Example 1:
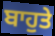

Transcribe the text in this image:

ਬਾਹੁਤੇ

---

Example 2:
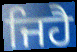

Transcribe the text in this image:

ਜਿਹੈ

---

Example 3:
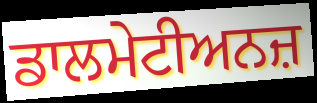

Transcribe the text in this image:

ਡਾਲਮੇਟੀਅਨਜ਼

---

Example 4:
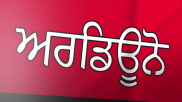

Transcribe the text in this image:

ਅਰਡਿਊਨੋ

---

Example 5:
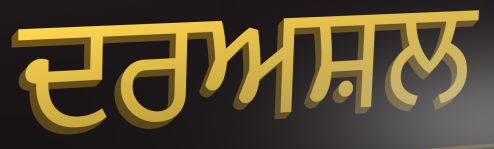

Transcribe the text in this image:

ਦਰਅਸ਼ਲ